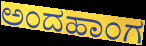
ಅಂದಹಾಂಗ